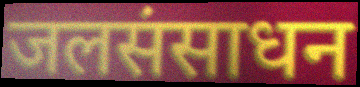
जलसंसाधन